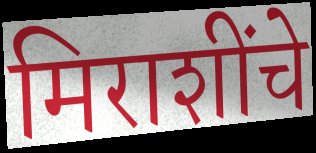
मिराशींचे